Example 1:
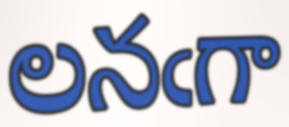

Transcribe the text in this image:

లనఁగా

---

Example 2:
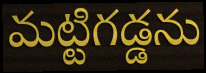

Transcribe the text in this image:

మట్టిగడ్డను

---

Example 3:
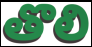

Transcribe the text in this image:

తొలి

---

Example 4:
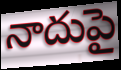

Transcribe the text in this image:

నాదుపై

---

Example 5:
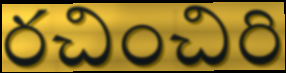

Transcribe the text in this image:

రచించిరి